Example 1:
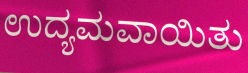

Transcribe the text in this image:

ಉದ್ಯಮವಾಯಿತು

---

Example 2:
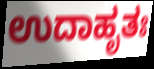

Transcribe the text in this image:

ಉದಾಹೃತಃ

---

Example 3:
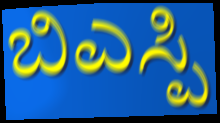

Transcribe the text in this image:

ಬಿಎಸ್ಪಿ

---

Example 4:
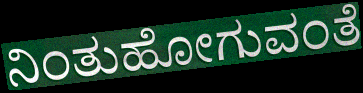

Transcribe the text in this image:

ನಿಂತುಹೋಗುವಂತೆ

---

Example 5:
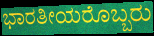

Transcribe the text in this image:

ಭಾರತೀಯರೊಬ್ಬರು